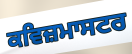
ਕਵਿਜ਼ਮਾਸਟਰ